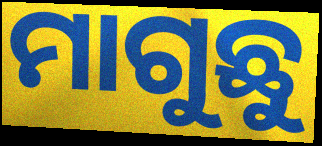
ମାଗୁଛୁ